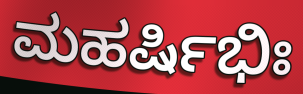
ಮಹರ್ಷಿಭಿಃ